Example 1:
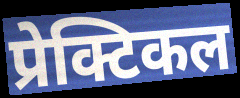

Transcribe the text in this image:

प्रेक्टिकल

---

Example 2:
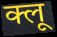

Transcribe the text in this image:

क्लू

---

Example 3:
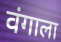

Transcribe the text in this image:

वंगाला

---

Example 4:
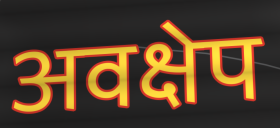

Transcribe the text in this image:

अवक्षेप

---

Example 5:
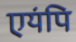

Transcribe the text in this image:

एयंपि